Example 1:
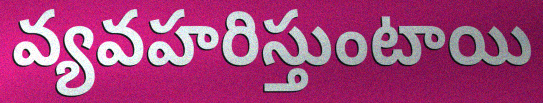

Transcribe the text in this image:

వ్యవహరిస్తుంటాయి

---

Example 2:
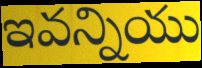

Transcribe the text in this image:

ఇవన్నియు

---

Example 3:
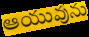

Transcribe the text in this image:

ఆయువును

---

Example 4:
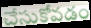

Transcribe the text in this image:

చేసుకోవడం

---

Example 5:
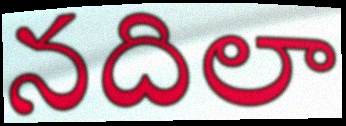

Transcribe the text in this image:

నదిలా